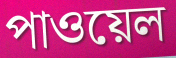
পাওয়েল